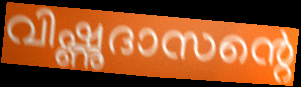
വിഷ്ണുദാസന്റെ